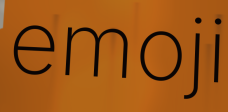
emoji